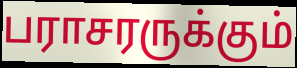
பராசரருக்கும்